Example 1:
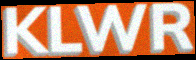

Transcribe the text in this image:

KLWR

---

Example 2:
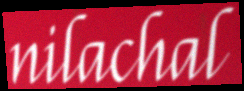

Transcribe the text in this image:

nilachal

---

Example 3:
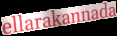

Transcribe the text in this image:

ellarakannada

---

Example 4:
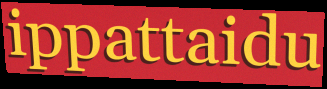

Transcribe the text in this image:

ippattaidu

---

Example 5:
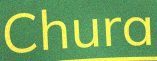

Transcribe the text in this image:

Chura